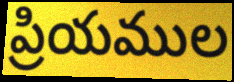
ప్రియముల